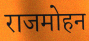
राजमोहन